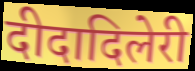
दीदादिलेरी